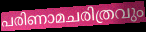
പരിണാമചരിത്രവും